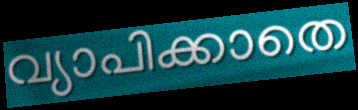
വ്യാപിക്കാതെ